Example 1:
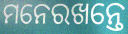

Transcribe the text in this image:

ମନେରଖନ୍ତେ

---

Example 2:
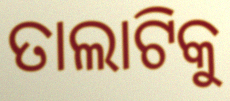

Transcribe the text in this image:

ତାଲାଟିକୁ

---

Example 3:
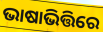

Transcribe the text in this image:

ଭାଷାଭିତ୍ତିରେ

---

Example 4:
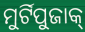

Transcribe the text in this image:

ମୁର୍ଟିପୁଜାକ୍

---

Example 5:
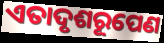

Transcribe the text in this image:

ଏତାଦୃଶରୂପେଣ